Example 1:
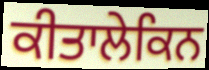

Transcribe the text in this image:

ਕੀਤਾਲੇਕਿਨ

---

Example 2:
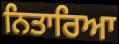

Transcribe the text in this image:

ਨਿਤਾਰਿਆ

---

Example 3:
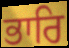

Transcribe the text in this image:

ਭਾਰਿ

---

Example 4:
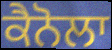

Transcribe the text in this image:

ਕੈਨੋਲਾ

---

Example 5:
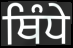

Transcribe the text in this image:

ਥਿੰਧੇ